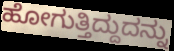
ಹೋಗುತ್ತಿದ್ದುದನ್ನು